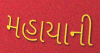
મહાયાની